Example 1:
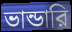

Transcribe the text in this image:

ভান্ডারি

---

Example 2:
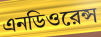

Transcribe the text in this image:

এনডিওরেন্স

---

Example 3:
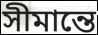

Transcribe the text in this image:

সীমান্তে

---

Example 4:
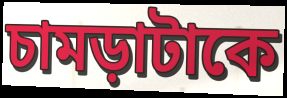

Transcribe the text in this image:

চামড়াটাকে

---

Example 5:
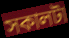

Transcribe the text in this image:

সকালটা